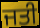
ਜਤੀ